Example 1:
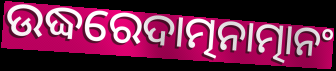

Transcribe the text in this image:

ଉଦ୍ଧରେଦାତ୍ମନାତ୍ମାନଂ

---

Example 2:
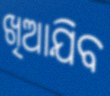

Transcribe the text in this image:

ଖିଆଯିବ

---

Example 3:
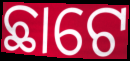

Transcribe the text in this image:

ଛାଟେ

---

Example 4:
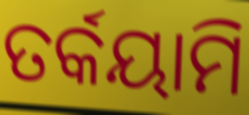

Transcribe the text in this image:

ତର୍କୟାମି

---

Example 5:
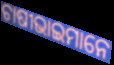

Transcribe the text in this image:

ଚାଷୀଭାଇମାନେ